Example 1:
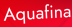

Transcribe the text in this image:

Aquafina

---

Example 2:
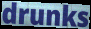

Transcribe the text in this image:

drunks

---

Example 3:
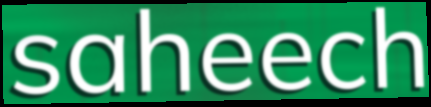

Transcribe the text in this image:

saheech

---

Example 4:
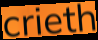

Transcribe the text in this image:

crieth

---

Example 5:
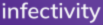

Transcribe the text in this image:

infectivity